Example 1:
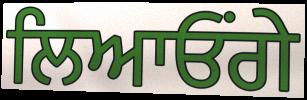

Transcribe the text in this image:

ਲਿਆਓਂਗੇ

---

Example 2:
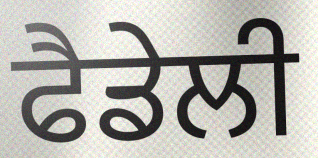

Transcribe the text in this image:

ਫੈਡੇਲੀ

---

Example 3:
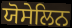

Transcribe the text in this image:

ਯੋਸੇਲਿਨ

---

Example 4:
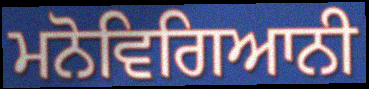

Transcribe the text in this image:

ਮਨੋਵਿਗਿਆਨੀ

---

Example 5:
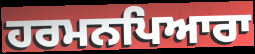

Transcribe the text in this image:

ਹਰਮਨਪਿਆਰਾ